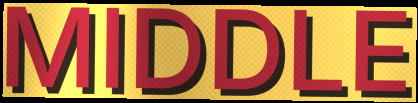
MIDDLE